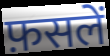
फ़सलें